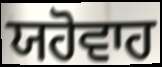
ਯਹੋਵਾਹ